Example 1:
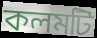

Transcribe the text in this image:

কলমটি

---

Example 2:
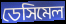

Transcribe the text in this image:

ডেসিমেল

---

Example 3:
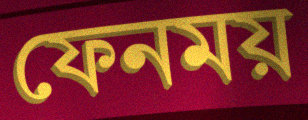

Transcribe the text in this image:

ফেনময়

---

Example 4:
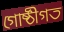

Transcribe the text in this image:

গোষ্ঠীগত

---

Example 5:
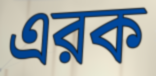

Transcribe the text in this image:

এরক